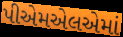
પીએમએલએમાં